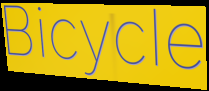
Bicycle